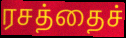
ரசத்தைச்